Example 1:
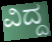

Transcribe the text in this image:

ವಿದ್ದ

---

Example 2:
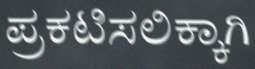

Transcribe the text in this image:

ಪ್ರಕಟಿಸಲಿಕ್ಕಾಗಿ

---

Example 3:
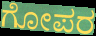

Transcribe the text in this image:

ಗೋಪರ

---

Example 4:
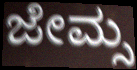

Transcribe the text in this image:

ಜೇಮ್ಸ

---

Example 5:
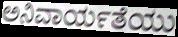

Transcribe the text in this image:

ಅನಿವಾರ್ಯತೆಯು